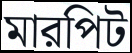
মারপিট